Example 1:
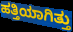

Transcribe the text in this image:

ಹತ್ತಿಯಾಗಿತ್ತು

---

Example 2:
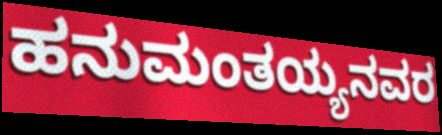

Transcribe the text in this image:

ಹನುಮಂತಯ್ಯನವರ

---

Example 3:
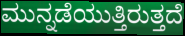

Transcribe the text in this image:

ಮುನ್ನಡೆಯುತ್ತಿರುತ್ತದೆ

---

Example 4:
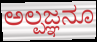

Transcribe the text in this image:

ಅಲ್ಪಜ್ಞನೂ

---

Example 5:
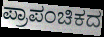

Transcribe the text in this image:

ಪ್ರಾಪಂಚಿಕದ